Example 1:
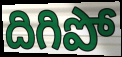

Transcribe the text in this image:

దిగిపో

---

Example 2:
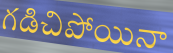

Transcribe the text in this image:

గడిచిపోయినా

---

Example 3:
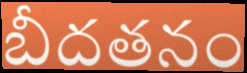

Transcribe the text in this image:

బీదతనం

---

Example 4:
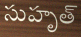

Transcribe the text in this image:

సుహృత్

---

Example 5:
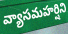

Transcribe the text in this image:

వ్యాసమహర్షిని